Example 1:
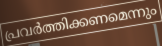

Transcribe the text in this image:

പ്രവർത്തിക്കണമെന്നും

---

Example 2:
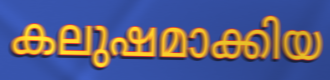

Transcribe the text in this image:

കലുഷമാക്കിയ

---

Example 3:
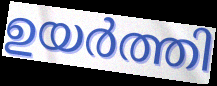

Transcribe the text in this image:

ഉയർത്തി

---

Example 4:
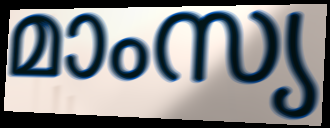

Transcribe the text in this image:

മാംസ്യ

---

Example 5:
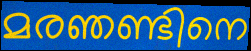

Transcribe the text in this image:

മരഞണ്ടിനെ